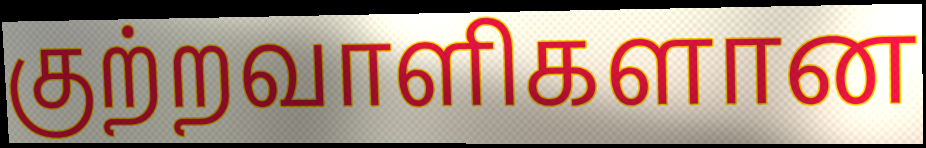
குற்றவாளிகளான